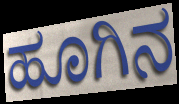
ಹೂಗಿನ